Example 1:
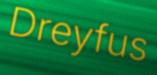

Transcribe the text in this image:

Dreyfus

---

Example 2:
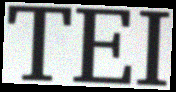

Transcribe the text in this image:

TEI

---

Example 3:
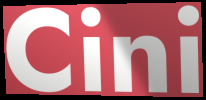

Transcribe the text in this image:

Cini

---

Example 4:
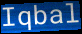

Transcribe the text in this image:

Iqbal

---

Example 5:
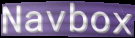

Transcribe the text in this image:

Navbox